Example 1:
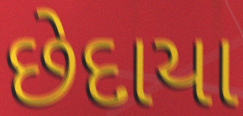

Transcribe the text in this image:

છેદાયા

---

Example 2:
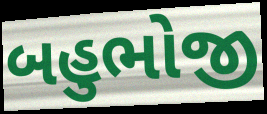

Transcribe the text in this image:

બહુભોજી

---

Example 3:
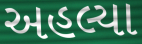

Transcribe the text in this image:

અહલ્યા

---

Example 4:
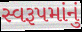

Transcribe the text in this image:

સ્વરૂપમાંનું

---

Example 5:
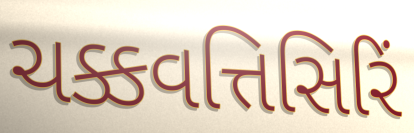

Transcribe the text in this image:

ચક્કવત્તિસિરિં